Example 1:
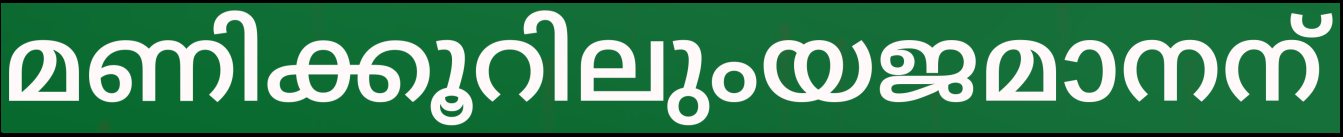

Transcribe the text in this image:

മണിക്കൂറിലുംയജമാനന്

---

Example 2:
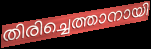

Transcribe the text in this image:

തിരിച്ചെത്താനായി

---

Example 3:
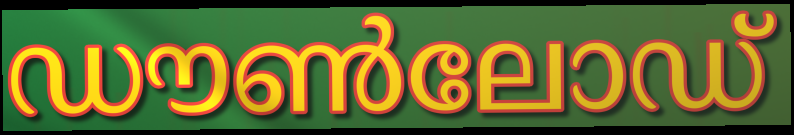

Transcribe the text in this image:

ഡൗൺലോഡ്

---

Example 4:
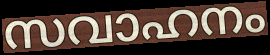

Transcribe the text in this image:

സവാഹനം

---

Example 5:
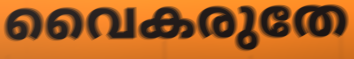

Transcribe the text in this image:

വൈകരുതേ